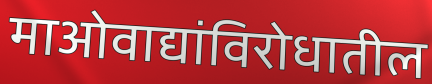
माओवाद्यांविरोधातील